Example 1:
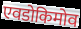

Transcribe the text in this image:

एवडोकिमोव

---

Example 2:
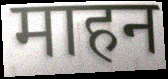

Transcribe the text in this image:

माहन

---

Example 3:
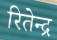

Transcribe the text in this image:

रितेन्द्र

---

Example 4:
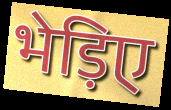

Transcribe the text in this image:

भेड़िए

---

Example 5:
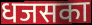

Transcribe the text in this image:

धजसका